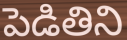
పెడితిని